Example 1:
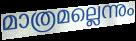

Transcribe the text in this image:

മാത്രമല്ലെന്നും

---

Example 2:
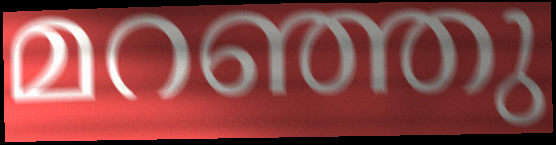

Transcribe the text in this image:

മറഞ്ഞു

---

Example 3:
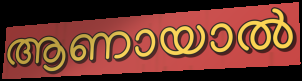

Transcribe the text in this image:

ആണായാൽ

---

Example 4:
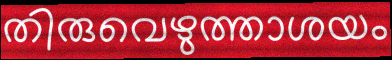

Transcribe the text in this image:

തിരുവെഴുത്താശയം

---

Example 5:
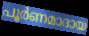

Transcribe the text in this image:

പൂർണമാദായ